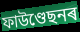
ফাউণ্ডেছনৰ